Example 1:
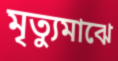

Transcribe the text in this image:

মৃত্যুমাঝে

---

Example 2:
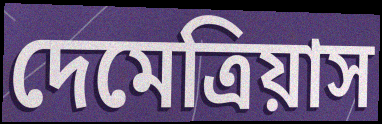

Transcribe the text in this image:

দেমেত্রিয়াস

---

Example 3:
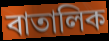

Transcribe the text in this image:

বাতালিক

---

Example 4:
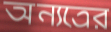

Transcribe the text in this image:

অন্যত্রের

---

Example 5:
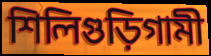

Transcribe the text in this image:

শিলিগুড়িগামী